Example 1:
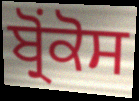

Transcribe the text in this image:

ਬ੍ਰੋਂਕੋਸ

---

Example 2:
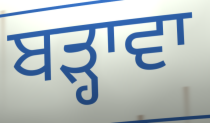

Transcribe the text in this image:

ਬੜ੍ਹਾਵਾ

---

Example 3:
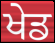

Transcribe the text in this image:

ਖੇਡ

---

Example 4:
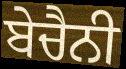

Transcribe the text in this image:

ਬੇਚੈਨੀ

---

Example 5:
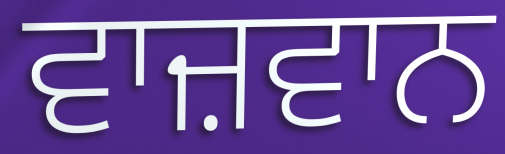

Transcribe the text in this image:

ਵਾਜ਼ਵਾਨ